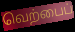
வெற்பைப்